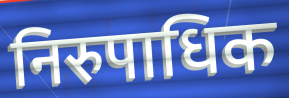
निरुपाधिक